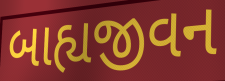
બાહ્યજીવન